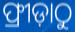
ଫ୍ରୀଡ଼ାଠୁ